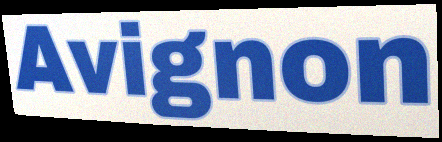
Avignon